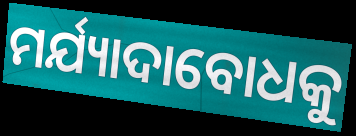
ମର୍ଯ୍ୟାଦାବୋଧକୁ